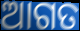
ଆଗତ